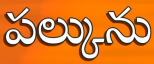
పల్కును